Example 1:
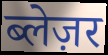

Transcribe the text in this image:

ब्लेज़र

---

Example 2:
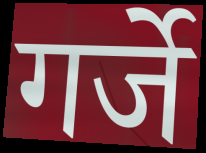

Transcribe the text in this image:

गर्जे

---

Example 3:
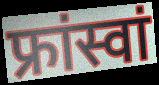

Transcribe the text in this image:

फ्रांस्वां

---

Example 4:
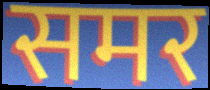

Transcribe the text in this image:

समर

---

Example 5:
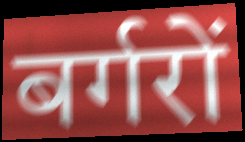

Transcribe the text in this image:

बर्गरों